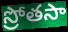
స్రోతసా